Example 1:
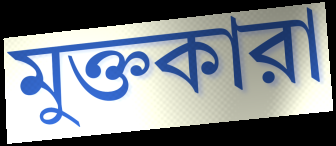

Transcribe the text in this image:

মুক্তকারা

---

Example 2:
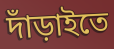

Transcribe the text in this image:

দাঁড়াইতে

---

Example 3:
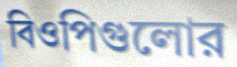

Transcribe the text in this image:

বিওপিগুলোর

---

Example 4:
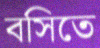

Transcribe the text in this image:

বসিতে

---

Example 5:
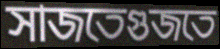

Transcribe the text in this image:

সাজতেগুজতে